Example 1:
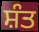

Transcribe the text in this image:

ਸ਼ੰਤ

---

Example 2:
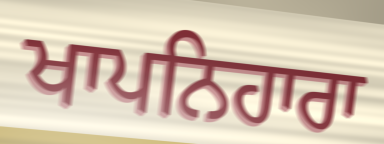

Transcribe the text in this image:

ਖਾਪਨਿਹਾਰਾ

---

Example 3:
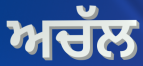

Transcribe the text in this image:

ਅਚੱਲ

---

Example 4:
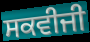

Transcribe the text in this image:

ਸਕਵੀਜੀ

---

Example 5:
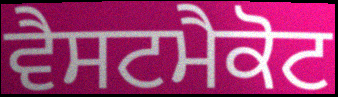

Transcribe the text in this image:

ਵੈਸਟਮੈਕੋਟ